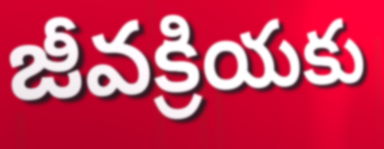
జీవక్రియకు